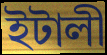
ইটালী